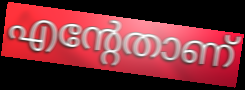
എന്റേതാണ്